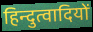
हिन्दुत्वादियों